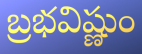
బ్రభవిష్ణుం